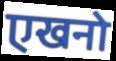
एखनो